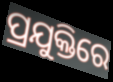
ପ୍ରଯୁକ୍ତିରେ